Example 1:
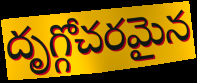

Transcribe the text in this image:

దృగ్గోచరమైన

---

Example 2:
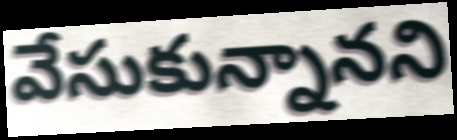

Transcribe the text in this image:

వేసుకున్నానని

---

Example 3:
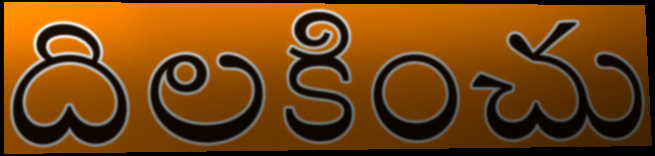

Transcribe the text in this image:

దిలకించు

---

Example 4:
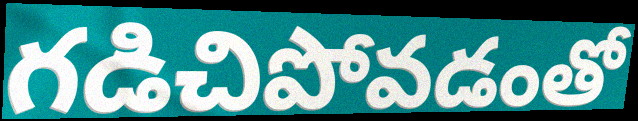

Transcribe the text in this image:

గడిచిపోవడంతో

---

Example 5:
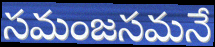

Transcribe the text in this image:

సమంజసమనే